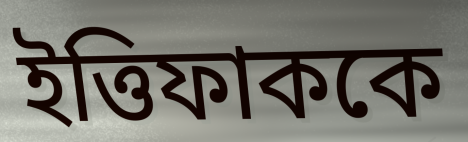
ইত্তিফাককে